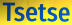
Tsetse